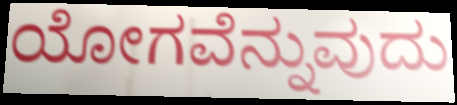
ಯೋಗವೆನ್ನುವುದು